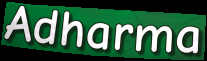
Adharma